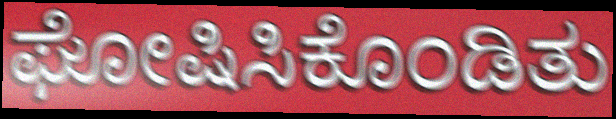
ಘೋಷಿಸಿಕೊಂಡಿತು